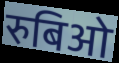
रुबिओ